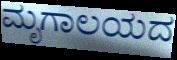
ಮೃಗಾಲಯದ